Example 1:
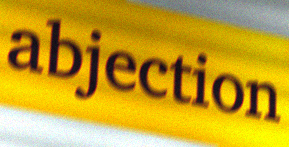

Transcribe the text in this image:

abjection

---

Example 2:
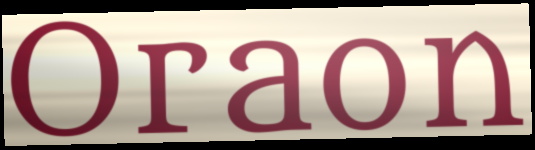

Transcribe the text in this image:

Oraon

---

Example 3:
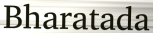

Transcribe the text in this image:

Bharatada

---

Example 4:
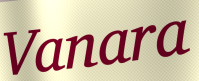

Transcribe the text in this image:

Vanara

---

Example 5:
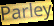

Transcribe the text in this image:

Parley